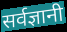
सर्वज्ञानी